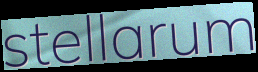
stellarum